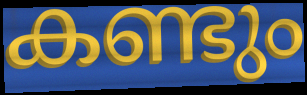
കണ്ടും